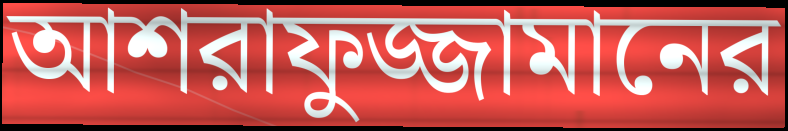
আশরাফুজ্জামানের